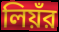
লিয়ঁর